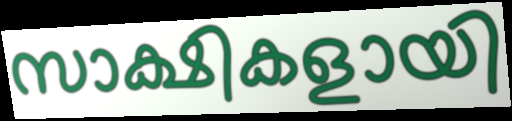
സാക്ഷികളായി